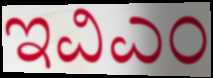
ಇವಿಎಂ